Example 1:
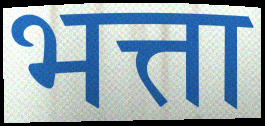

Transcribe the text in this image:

भत्ता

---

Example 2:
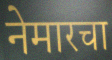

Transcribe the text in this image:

नेमारचा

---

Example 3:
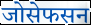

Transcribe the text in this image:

जोसेफसन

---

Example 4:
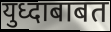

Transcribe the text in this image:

युध्दाबाबत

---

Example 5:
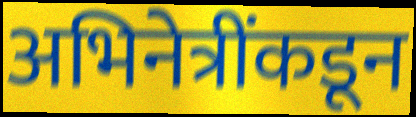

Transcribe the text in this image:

अभिनेत्रींकडून